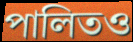
পালিতও